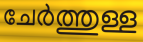
ചേർത്തുള്ള